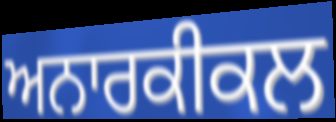
ਅਨਾਰਕੀਕਲ